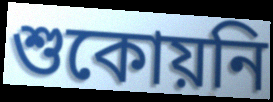
শুকোয়নি